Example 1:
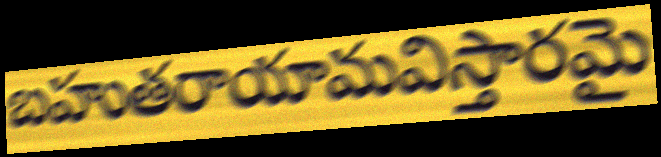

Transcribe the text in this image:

బహుతరాయామవిస్తారమై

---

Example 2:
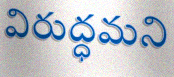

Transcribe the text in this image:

విరుద్ధమని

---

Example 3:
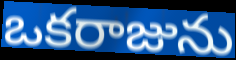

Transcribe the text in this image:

ఒకరాజును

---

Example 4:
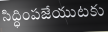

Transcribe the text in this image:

సిద్ధింపజేయుటకు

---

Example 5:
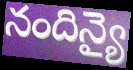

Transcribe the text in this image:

నందిన్యై